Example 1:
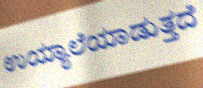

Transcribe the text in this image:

ಉಯ್ಯಾಲೆಯಾಡುತ್ತದೆ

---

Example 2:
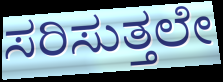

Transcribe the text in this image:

ಸರಿಸುತ್ತಲೇ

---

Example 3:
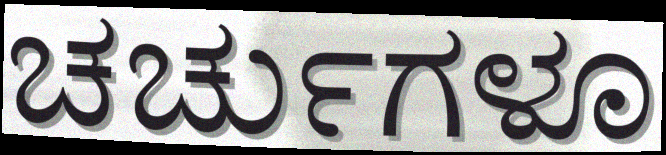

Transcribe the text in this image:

ಚರ್ಚುಗಳೂ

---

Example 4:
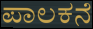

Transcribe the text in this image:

ಪಾಲಕನೆ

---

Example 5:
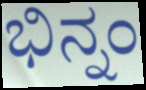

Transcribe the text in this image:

ಭಿನ್ನಂ